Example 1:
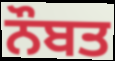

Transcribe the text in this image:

ਨੌਬਤ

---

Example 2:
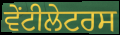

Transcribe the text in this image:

ਵੇਂਟੀਲੇਟਰਸ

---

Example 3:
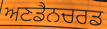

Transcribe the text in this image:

ਅਣਡੈਨਚਰਡ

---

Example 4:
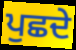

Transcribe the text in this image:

ਪੁਛਦੇ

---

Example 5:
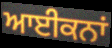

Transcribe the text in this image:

ਆਈਕਨਾਂ